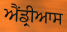
ਐਂਡ੍ਰੀਆਸ